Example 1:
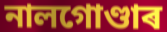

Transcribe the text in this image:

নালগোণ্ডাৰ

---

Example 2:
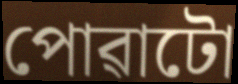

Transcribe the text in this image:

পোৱাটো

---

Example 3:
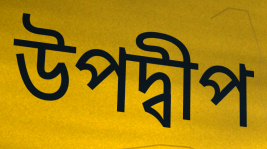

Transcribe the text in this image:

উপদ্বীপ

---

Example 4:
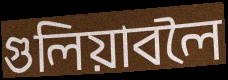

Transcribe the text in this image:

গুলিয়াবলৈ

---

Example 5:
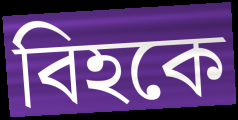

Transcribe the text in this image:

বিহকে